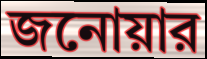
জনোয়ার